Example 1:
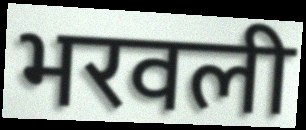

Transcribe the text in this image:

भरवली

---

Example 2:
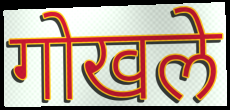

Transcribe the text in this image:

गोखले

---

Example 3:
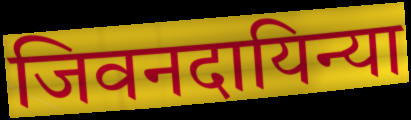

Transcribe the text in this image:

जिवनदायिन्या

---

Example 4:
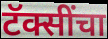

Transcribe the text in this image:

टॅक्सींचा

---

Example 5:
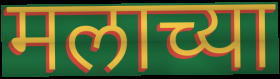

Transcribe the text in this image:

मलाच्या